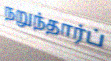
நறுந்தார்ப்